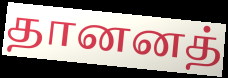
தானனத்